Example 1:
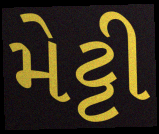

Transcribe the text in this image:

મેટ્ટી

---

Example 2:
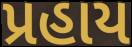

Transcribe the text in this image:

પ્રહાય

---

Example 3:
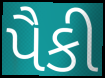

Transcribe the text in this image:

પૈકી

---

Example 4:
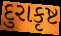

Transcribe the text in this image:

દુરાકૃષ્ટ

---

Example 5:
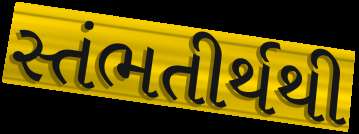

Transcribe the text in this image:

સ્તંભતીર્થથી